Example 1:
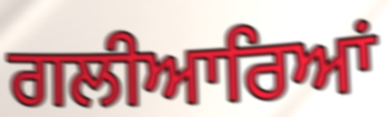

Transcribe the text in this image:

ਗਲੀਆਰਿਆਂ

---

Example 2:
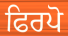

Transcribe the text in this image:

ਫਿਰਪੋ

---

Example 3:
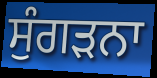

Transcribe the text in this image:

ਸੁੰਗੜਨਾ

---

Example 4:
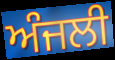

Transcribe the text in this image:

ਅੰਜਲੀ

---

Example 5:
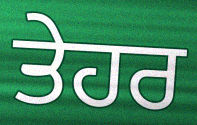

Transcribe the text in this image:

ਤੇਹਰ